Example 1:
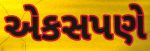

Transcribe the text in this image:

એકસપણે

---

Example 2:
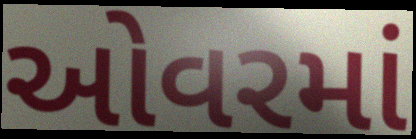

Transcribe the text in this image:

ઓવરમાં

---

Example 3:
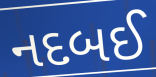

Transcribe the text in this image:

નદબઈ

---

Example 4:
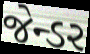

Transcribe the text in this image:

જેન્ડર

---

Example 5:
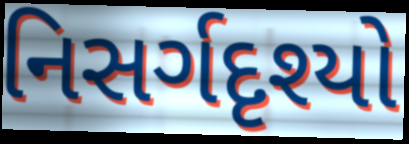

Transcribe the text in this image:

નિસર્ગદૃશ્યો